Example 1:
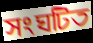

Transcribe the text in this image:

সংঘটিত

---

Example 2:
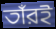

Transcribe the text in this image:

তাঁরই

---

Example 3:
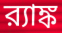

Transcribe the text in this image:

র‍্যাঙ্ক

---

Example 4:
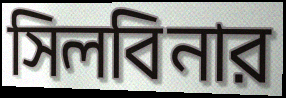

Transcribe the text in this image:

সিলবিনার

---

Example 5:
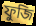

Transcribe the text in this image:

ফুজি